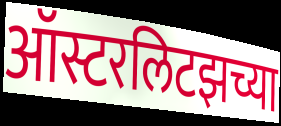
ऑस्टरलिटझच्या